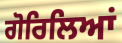
ਗੋਰਿਲਿਆਂ